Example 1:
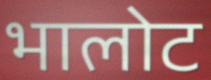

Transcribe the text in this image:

भालोट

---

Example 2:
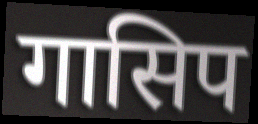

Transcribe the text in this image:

गासिप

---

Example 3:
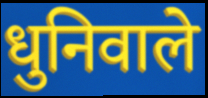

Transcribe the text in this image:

धुनिवाले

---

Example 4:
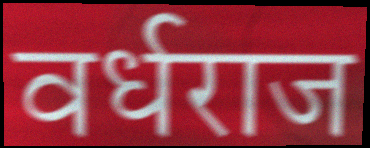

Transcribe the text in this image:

वर्धराज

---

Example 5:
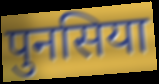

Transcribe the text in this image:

पुनसिया